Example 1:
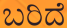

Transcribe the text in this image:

ಬರಿದೆ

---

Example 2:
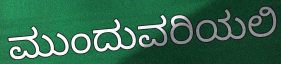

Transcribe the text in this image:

ಮುಂದುವರಿಯಲಿ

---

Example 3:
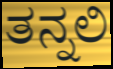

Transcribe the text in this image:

ತನ್ನಲಿ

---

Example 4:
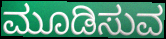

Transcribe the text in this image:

ಮೂಡಿಸುವ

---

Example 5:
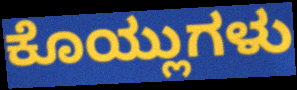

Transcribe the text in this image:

ಕೊಯ್ಲುಗಳು